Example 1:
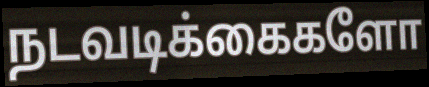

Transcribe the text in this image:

நடவடிக்கைகளோ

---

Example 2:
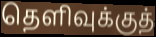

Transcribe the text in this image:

தெளிவுக்குத்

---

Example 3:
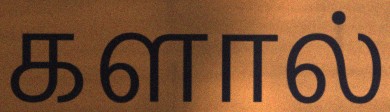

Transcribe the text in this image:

களால்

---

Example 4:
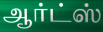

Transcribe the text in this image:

ஆர்ட்ஸ்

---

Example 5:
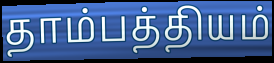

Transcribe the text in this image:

தாம்பத்தியம்